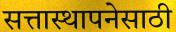
सत्तास्थापनेसाठी